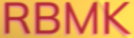
RBMK